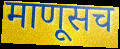
माणूसच